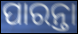
ପାରନ୍ତା